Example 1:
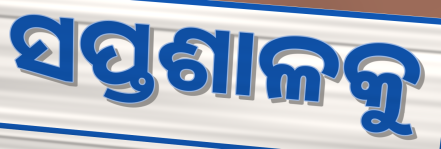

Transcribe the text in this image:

ସପ୍ତଶାଳକୁ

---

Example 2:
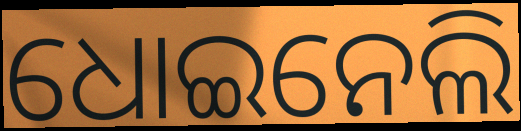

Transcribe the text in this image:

ଧୋଇନେଲି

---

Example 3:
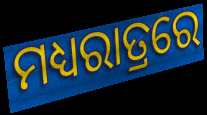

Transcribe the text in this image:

ମଧ୍ୟରାତ୍ରରେ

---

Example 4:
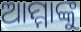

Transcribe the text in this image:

ଆମ୍ମାଙ୍କୁ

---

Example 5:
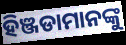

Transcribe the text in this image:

ହିଞ୍ଜଡାମାନଙ୍କୁ